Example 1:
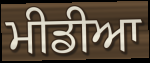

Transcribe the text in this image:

ਮੀਡੀਆ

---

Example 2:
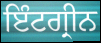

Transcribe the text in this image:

ਇੰਟਗ੍ਰੀਨ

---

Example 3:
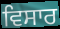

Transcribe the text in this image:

ਵਿਸਾਰ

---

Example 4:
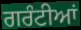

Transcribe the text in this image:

ਗਰੰਟੀਆਂ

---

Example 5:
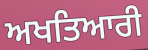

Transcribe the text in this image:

ਅਖਤਿਆਰੀ